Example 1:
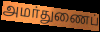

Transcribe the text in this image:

அமர்துணைப்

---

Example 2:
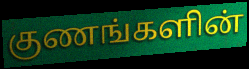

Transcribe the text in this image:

குணங்களின்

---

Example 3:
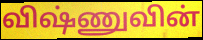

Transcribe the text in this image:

விஷ்ணுவின்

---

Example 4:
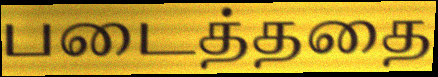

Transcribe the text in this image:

படைத்ததை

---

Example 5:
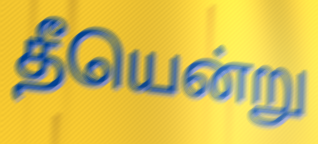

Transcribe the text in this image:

தீயென்று